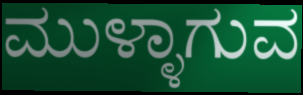
ಮುಳ್ಳಾಗುವ